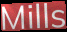
Mills